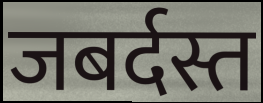
जबर्दस्त